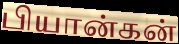
பியான்கன்